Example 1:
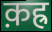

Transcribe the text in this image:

क़ह्र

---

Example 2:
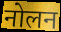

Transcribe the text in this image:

नोलन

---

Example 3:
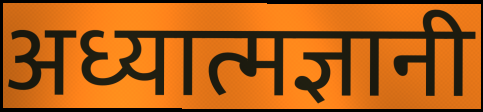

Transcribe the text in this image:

अध्यात्मज्ञानी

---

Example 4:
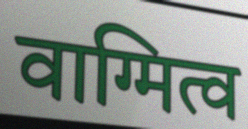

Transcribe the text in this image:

वाग्मित्व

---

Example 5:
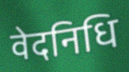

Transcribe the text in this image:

वेदनिधि